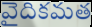
వైదికమత